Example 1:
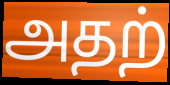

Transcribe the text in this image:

அதற்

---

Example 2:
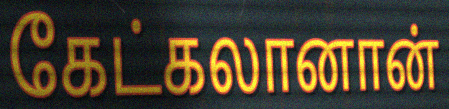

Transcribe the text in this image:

கேட்கலானான்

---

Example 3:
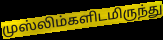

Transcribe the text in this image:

முஸ்லிம்களிடமிருந்து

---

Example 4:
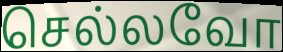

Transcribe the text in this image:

செல்லவோ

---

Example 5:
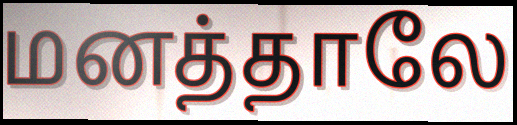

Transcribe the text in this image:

மனத்தாலே